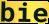
bie